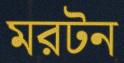
মরটন